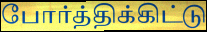
போர்த்திக்கிட்டு